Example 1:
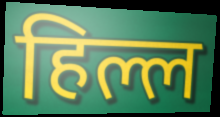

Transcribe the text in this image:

हिल्ल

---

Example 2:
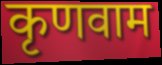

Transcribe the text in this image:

कृणवाम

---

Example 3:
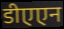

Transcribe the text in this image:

डीएएन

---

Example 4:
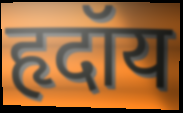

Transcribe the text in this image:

हृदॉय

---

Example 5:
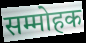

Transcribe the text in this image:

सम्मोहक